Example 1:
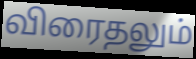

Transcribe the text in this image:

விரைதலும்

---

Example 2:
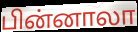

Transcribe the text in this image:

பின்னாலா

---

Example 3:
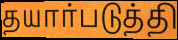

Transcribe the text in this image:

தயார்படுத்தி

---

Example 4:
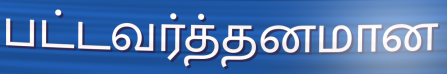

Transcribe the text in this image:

பட்டவர்த்தனமான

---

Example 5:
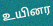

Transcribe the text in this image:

உயினர